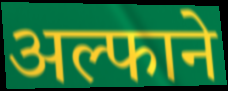
अल्फाने